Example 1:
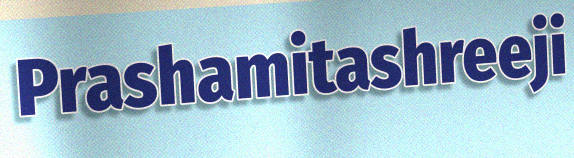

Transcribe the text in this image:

Prashamitashreeji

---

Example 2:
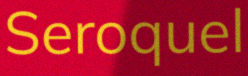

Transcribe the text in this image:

Seroquel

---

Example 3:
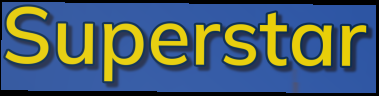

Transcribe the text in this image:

Superstar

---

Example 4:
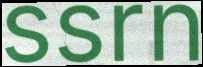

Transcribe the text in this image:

ssrn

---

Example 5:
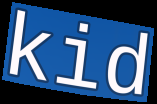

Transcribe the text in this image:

kid